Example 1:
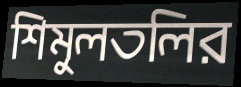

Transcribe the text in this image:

শিমুলতলির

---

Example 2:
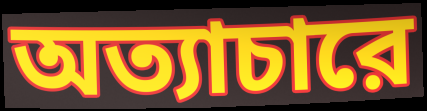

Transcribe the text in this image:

অত্যাচারে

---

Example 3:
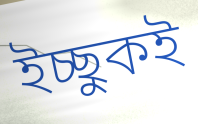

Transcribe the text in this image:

ইচ্ছুকই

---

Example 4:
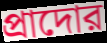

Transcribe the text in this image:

প্রাদোর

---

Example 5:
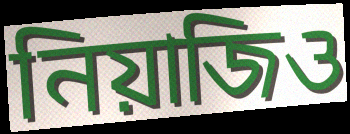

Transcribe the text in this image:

নিয়াজিও